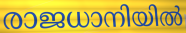
രാജധാനിയിൽ